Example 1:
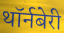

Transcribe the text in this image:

थॉर्नबेरी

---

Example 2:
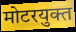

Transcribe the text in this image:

मोटरयुक्त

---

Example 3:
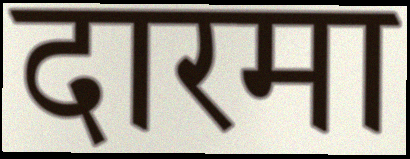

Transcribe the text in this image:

दारमा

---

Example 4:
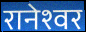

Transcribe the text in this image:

रानेश्वर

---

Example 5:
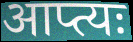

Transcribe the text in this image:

आप्त्यः